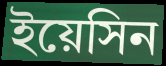
ইয়েসিন